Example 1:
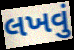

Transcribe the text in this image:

લખવું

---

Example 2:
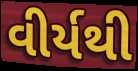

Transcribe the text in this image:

વીર્યથી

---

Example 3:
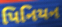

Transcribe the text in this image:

પિનિયન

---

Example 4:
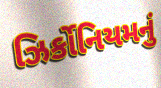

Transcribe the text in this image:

ઝિર્કોનિયમનું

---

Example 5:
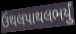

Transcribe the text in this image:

ઉથલપાથલભર્યું